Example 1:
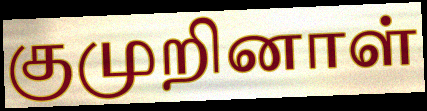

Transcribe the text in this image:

குமுறினாள்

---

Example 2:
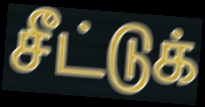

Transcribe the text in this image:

சீட்டுக்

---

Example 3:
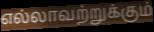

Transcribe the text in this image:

எல்லாவற்றுக்கும்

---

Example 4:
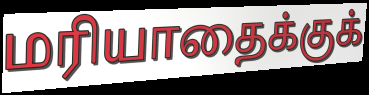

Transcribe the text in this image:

மரியாதைக்குக்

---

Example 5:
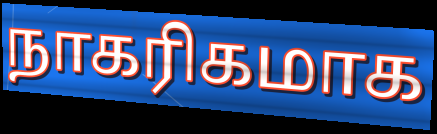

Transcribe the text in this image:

நாகரிகமாக